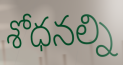
శోధనల్ని